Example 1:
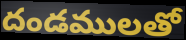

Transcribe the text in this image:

దండములతో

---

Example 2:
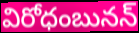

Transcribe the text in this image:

విరోధంబునన్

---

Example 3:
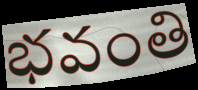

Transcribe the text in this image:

భవంతి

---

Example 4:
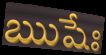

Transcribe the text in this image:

ఋషేః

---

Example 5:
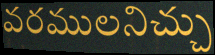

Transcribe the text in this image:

వరములనిచ్చు